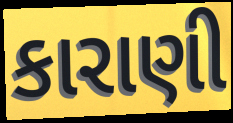
કારાણી